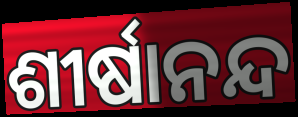
ଶୀର୍ଷାନନ୍ଦ